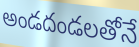
అండదండలతోనే